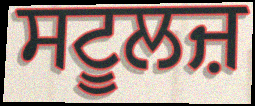
ਸਟੂਲਜ਼